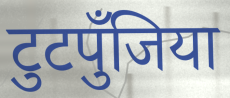
टुटपुँजिया